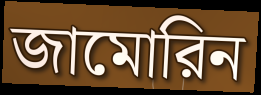
জামোরিন